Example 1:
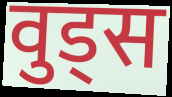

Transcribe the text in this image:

वुड्स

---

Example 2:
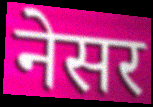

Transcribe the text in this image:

नेसर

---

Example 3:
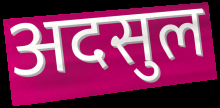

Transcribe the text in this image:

अदसुल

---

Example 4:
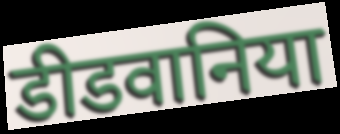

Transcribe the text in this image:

डीडवानिया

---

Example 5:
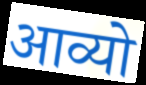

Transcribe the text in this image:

आव्यो